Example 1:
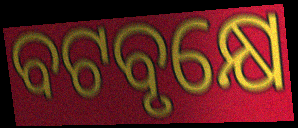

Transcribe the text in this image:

ବଟବୃକ୍ଷେ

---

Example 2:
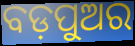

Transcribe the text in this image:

ବଡ଼ପୁଅର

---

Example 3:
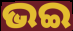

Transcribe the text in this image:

ଭଇ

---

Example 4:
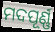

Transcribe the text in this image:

ମଦପୂର୍ଣ୍ଣ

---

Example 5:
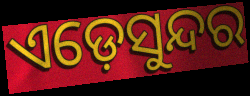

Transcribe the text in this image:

ଏଡ଼େସୁନ୍ଦର